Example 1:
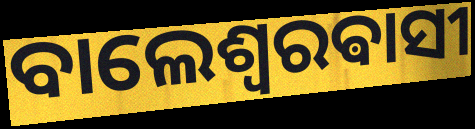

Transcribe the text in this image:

ବାଲେଶ୍ଵରଵାସୀ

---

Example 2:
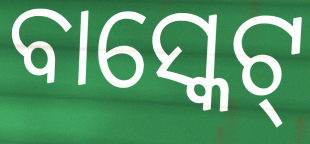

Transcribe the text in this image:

ବାସ୍କେଟ୍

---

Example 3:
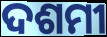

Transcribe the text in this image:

ଦଶମୀ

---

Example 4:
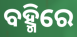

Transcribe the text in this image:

ବହ୍ମିରେ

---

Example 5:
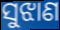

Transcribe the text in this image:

ସୁଝାଣ